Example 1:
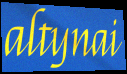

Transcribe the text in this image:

altynai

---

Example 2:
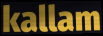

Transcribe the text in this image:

kallam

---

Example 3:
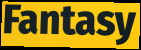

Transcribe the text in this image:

Fantasy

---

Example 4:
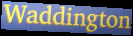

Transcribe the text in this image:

Waddington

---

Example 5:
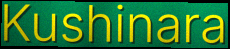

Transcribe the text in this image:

Kushinara